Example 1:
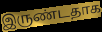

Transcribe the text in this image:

இருண்டதாக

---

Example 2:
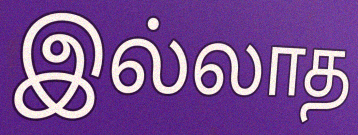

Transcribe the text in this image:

இல்லாத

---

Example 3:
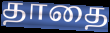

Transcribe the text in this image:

தாதை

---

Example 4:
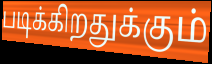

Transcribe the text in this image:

படிக்கிறதுக்கும்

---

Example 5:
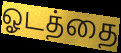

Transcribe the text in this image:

ஓடத்தை